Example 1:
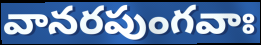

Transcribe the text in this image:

వానరపుంగవాః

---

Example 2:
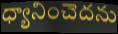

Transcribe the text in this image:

ధ్యానించెదను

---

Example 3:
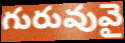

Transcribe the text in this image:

గురువువై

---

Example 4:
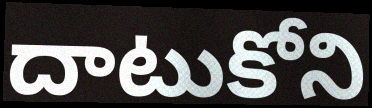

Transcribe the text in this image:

దాటుకోని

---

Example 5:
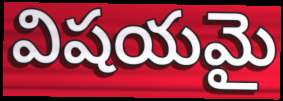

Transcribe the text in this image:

విషయమై